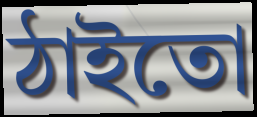
ঠাইতো